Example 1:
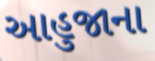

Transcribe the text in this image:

આહુજાના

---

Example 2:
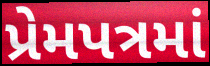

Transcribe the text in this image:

પ્રેમપત્રમાં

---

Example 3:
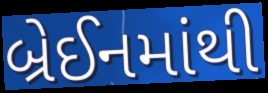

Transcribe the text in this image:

બ્રેઈનમાંથી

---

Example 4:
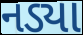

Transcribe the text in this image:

નડ્યા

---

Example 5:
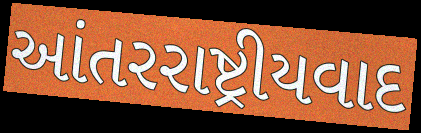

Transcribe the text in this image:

આંતરરાષ્ટ્રીયવાદ